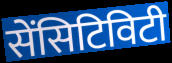
सेंसिटिविटी